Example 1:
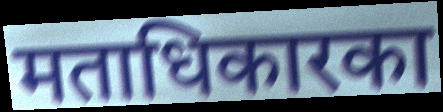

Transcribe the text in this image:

मताधिकारका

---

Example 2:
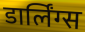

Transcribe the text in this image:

डार्लिंग्स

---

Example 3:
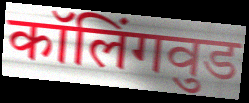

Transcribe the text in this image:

कॉलिंगवुड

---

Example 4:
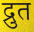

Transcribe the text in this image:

द्रुत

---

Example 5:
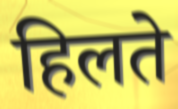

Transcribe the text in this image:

हिलते